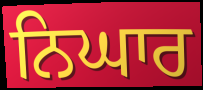
ਨਿਘਾਰ